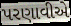
પરણાવીએ